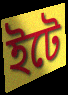
ইটে